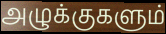
அழுக்குகளும்